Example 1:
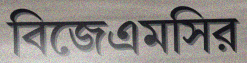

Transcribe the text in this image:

বিজেএমসির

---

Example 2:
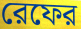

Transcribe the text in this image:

রেফের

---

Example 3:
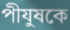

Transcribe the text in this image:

পীযুষকে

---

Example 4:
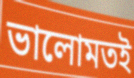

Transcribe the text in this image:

ভালোমতই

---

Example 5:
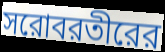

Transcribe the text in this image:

সরোবরতীরের